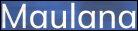
Maulana